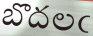
బొదలఁ